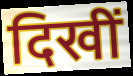
दिखीं